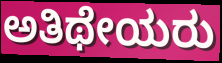
ಅತಿಥೇಯರು